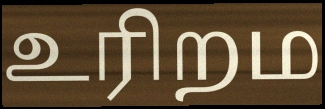
உரிறம